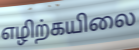
எழிற்கயிலை